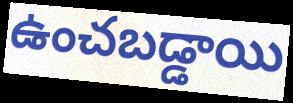
ఉంచబడ్డాయి